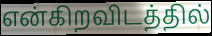
என்கிறவிடத்தில்